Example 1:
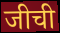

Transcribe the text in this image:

जीची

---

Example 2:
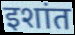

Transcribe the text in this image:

इशांत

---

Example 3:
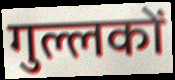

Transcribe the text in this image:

गुल्लकों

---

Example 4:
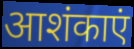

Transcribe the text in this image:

आशंकाएं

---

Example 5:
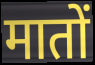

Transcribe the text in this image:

मातों